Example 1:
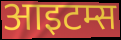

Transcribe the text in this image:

आइटम्स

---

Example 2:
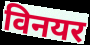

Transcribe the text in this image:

विनयर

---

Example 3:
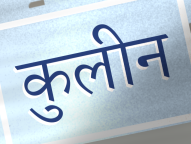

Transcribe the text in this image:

कुलीन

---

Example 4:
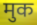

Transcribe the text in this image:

मुक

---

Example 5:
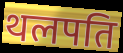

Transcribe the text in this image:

थलपति